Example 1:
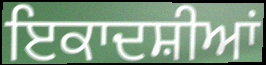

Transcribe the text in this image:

ਇਕਾਦਸ਼ੀਆਂ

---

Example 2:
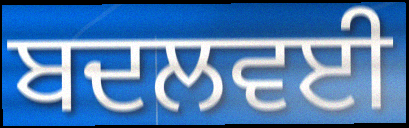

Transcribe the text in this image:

ਬਦਲਵਈ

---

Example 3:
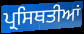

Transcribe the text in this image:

ਪ੍ਰਸਿਥਤੀਆਂ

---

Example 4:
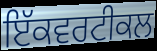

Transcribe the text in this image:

ਇੱਕਵਰਟੀਕਲ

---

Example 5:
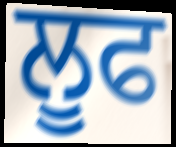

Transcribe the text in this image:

ਲੂਫ